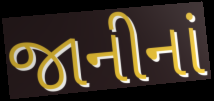
જાનીનાં